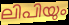
ലിപിയും